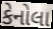
કેનોલા